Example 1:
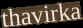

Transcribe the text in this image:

thavirka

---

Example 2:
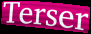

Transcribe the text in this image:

Terser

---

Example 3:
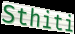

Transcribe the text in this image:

Sthiti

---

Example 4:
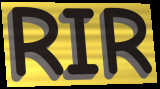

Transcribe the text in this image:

RIR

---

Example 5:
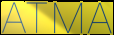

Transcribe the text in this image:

ATMA